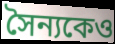
সৈন্যকেও